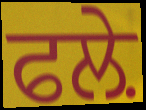
ਫਲ਼ੇ